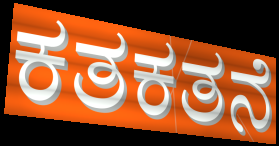
ಕತಕತನೆ